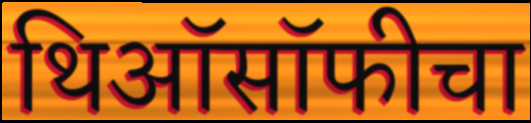
थिऑसॉफीचा